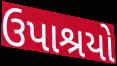
ઉપાશ્રયો